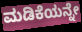
ಮಡಿಕೆಯನ್ನೇ